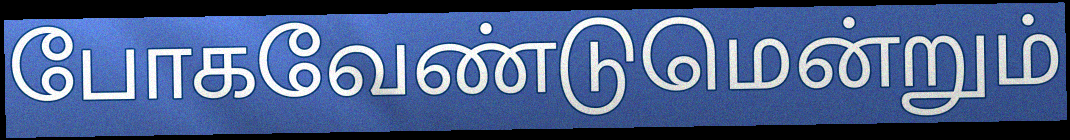
போகவேண்டுமென்றும்